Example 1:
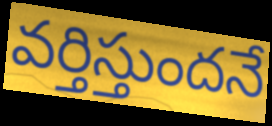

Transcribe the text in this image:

వర్తిస్తుందనే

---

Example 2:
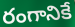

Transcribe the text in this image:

రంగానికే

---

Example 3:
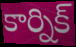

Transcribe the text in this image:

కార్నిక్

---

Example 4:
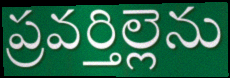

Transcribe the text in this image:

ప్రవర్తిల్లెను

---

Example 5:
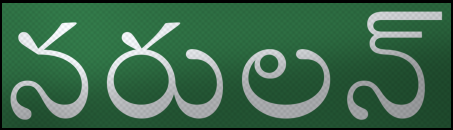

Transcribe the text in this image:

నరులన్